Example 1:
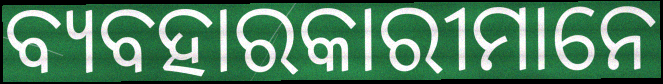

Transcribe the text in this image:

ବ୍ୟବହାରକାରୀମାନେ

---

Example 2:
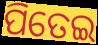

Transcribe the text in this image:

ପିତେଇ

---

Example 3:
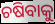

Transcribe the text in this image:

ଚଷିବାକୁ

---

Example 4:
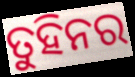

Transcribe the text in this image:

ତୁହିନର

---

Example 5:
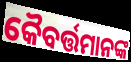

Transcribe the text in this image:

କୈବର୍ତ୍ତମାନଙ୍କ